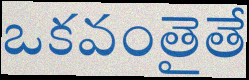
ఒకవంతైతే